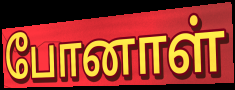
போனாள்